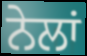
ਨੇਲਾਂ